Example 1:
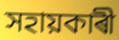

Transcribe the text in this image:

সহায়কাৰী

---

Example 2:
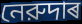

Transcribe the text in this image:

নেৰুদাৰ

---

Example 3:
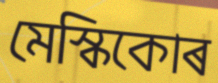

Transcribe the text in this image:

মেস্কিকোৰ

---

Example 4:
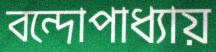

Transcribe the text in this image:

বন্দোপাধ্যায়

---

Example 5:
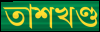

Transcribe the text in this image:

তাশখণ্ড